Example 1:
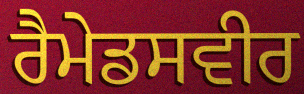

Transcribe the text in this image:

ਰੈਮੇਡਸਵੀਰ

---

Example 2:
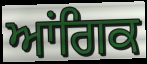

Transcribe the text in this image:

ਆਂਗਿਕ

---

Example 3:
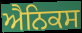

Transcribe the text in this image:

ਐਨਿਕਸ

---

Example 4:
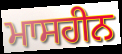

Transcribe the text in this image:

ਮਾਸਹੀਨ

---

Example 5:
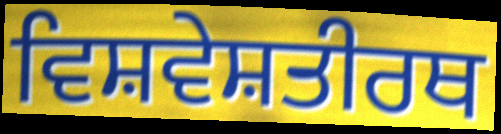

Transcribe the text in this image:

ਵਿਸ਼ਵੇਸ਼ਤੀਰਥ